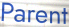
Parent